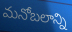
మనోబలాన్ని